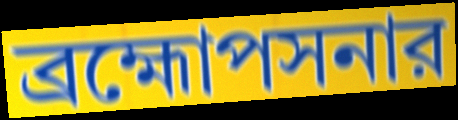
ব্রহ্মোপসনার